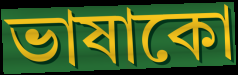
ভাষাকো